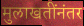
मुलाखतींनंतर